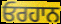
ਓਰਹਾਨ